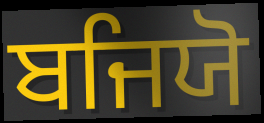
ਬਜਿਯੋ